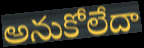
అనుకోలేదా